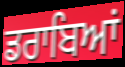
ਡਰਾਬਿਆਂ